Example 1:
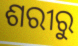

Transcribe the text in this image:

ଶରୀରୁ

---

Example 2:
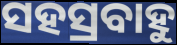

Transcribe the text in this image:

ସହସ୍ରବାହୁ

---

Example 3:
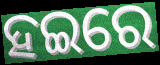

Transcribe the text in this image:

ହଇରେ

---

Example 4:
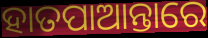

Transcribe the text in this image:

ହାତପାଆନ୍ତାରେ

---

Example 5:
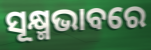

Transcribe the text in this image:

ସୂକ୍ଷ୍ମଭାବରେ